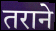
तराने